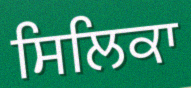
ਸਿਲਿਕਾ